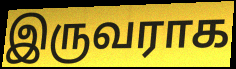
இருவராக